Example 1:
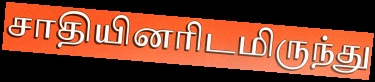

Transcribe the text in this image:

சாதியினரிடமிருந்து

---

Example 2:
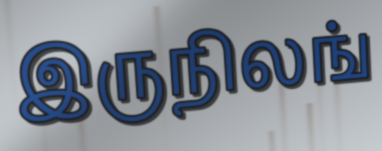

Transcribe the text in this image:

இருநிலங்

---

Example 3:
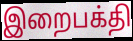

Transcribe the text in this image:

இறைபக்தி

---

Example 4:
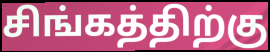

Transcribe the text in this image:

சிங்கத்திற்கு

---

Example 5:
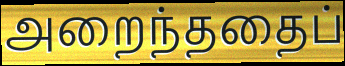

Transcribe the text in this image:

அறைந்ததைப்